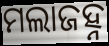
ମଲାଜହ୍ନ